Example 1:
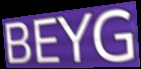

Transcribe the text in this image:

BEYG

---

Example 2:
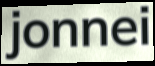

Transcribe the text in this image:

jonnei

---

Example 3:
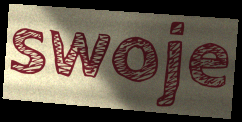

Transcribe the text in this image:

swoje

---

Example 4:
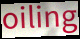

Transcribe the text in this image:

oiling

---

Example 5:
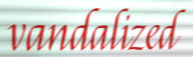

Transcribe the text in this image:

vandalized